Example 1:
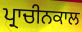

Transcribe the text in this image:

ਪ੍ਰਾਚੀਨਕਾਲ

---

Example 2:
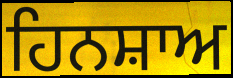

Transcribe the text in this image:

ਹਿਨਸ਼ਾਅ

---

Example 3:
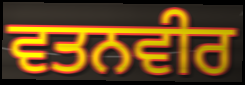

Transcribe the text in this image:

ਵਤਨਵੀਰ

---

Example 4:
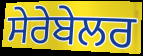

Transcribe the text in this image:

ਸੇਰੇਬੇਲਰ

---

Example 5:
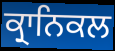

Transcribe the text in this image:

ਕ੍ਰਾਨਿਕਲ